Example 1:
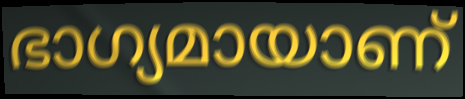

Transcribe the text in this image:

ഭാഗ്യമായാണ്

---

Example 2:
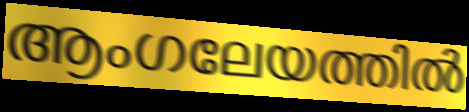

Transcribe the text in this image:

ആംഗലേയത്തിൽ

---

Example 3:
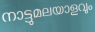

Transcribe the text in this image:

നാട്ടുമലയാളവും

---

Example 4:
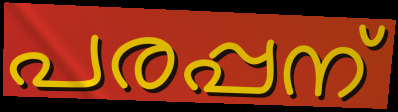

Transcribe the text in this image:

പരപ്പന്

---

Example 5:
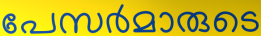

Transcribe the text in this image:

പേസർമാരുടെ